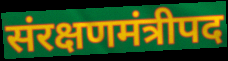
संरक्षणमंत्रीपद